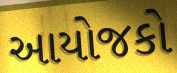
આયોજકો